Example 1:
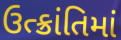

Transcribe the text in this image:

ઉત્ક્રાંતિમાં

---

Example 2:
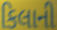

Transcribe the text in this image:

કિલાની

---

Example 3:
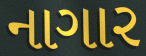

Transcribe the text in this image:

નાગાર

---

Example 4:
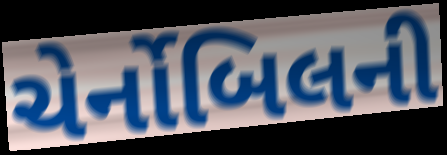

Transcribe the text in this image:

ચેર્નોબિલની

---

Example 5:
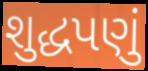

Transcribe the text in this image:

શુદ્ધપણું